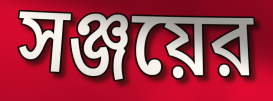
সঞ্জয়ের